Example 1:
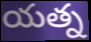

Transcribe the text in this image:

యత్న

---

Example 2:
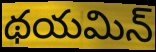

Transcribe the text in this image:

థయమిన్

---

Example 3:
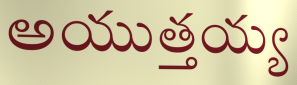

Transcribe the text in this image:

అయుత్తయ్య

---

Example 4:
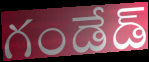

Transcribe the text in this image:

గండేడ్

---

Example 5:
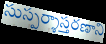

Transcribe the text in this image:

సుస్పర్శాస్తరణాని